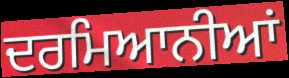
ਦਰਮਿਆਨੀਆਂ